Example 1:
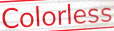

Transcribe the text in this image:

Colorless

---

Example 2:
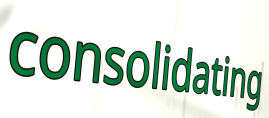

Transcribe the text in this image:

consolidating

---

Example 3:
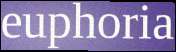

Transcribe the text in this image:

euphoria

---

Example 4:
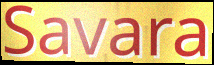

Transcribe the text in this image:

Savara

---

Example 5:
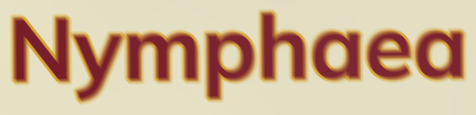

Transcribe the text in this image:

Nymphaea